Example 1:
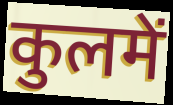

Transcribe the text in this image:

कुलमें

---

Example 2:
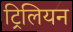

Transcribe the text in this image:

ट्रिलियन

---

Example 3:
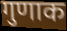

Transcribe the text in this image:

गुणाक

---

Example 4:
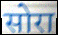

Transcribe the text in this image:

सोरा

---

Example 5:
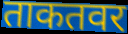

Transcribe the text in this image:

ताकतवर